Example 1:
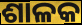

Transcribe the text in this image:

ଶାଳକ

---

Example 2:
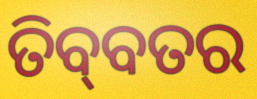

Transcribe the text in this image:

ତିବ୍‌ବତର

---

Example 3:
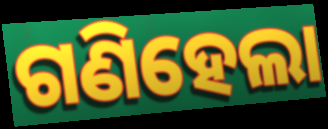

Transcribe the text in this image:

ଗଣିହେଲା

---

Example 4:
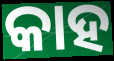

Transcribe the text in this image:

କାହ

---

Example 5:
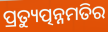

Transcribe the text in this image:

ପ୍ରତ୍ୟୁତ୍ପନ୍ନମତିର